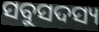
ସବୁସଦସ୍ୟ